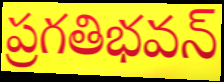
ప్రగతిభవన్